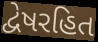
દ્વેષરહિત